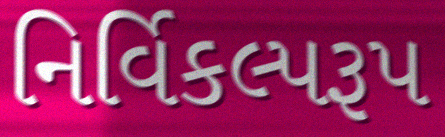
નિર્વિકલ્પરૂપ